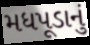
મધપૂડાનું